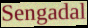
Sengadal